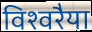
विश्वरैया